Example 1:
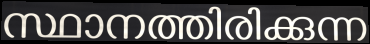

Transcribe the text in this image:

സ്ഥാനത്തിരിക്കുന്ന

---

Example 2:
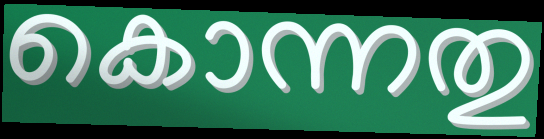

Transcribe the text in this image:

കൊന്നതു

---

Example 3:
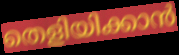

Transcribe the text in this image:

തെളിയിക്കാൻ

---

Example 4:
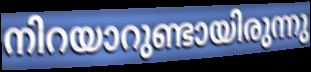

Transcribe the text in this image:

നിറയാറുണ്ടായിരുന്നു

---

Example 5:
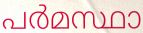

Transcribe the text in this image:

പർമസ്ഥാ